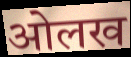
ओलख